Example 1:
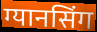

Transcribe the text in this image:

ग्यानसिंग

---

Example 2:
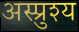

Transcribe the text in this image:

अस्प्रुश्य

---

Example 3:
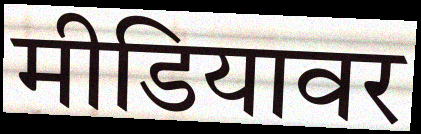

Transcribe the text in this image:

मीडियावर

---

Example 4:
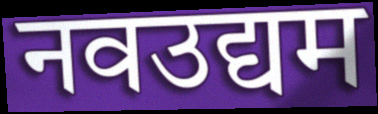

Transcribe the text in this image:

नवउद्यम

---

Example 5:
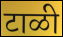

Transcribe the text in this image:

टाळी